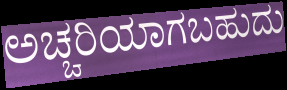
ಅಚ್ಚರಿಯಾಗಬಹುದು